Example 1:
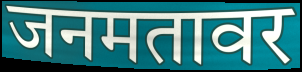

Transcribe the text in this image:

जनमतावर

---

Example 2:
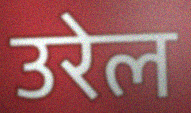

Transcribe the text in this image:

उरेल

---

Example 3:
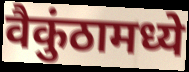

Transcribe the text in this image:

वैकुंठामध्ये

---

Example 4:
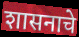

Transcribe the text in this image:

शासनाचे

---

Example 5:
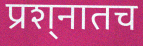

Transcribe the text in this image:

प्रश्नातच